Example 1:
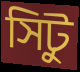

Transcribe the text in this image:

সিটু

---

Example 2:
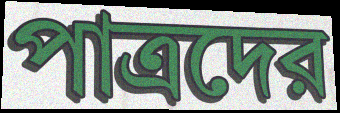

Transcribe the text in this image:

পাত্রদের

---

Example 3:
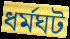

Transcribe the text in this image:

ধর্মঘট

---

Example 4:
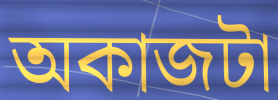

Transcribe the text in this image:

অকাজটা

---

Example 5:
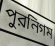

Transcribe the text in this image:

পুরনিগম